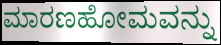
ಮಾರಣಹೋಮವನ್ನು